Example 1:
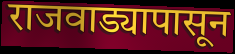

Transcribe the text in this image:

राजवाड्यापासून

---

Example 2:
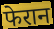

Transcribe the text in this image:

फेरान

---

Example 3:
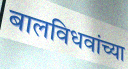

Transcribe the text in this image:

बालविधवांच्या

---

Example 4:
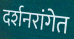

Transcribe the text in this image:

दर्शनरांगेत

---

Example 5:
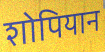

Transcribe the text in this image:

शोपियान